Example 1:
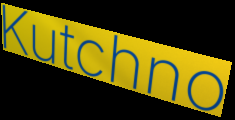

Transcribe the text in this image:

Kutchno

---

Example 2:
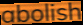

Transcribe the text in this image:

abolish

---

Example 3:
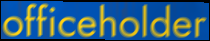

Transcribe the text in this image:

officeholder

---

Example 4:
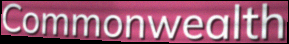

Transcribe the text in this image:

Commonwealth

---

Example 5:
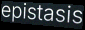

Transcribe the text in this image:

epistasis